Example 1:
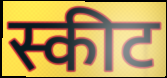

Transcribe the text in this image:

स्कीट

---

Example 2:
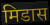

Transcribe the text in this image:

मिडास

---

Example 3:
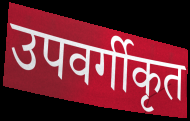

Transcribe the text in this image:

उपवर्गीकृत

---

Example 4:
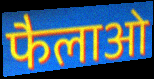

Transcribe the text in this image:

फैलाओ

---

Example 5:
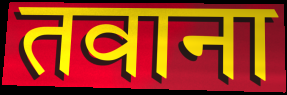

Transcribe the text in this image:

तवाना